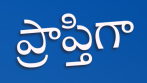
ప్రాప్తిగా